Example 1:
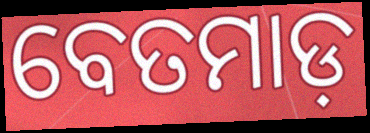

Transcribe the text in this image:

ବେତମାଡ଼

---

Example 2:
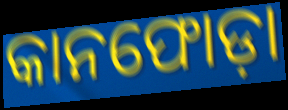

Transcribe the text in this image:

କାନଫୋଡ଼ା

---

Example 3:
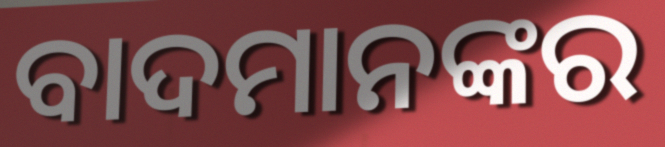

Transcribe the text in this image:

ବାଦମାନଙ୍କର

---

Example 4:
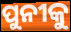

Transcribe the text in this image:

ପୁନୀକୁ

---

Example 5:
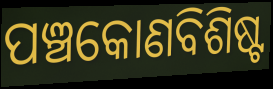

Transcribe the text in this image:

ପଞ୍ଚକୋଣବିଶିଷ୍ଟ